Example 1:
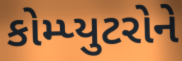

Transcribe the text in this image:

કોમ્પ્યુટરોને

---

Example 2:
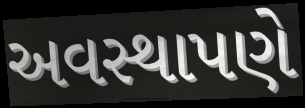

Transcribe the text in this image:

અવસ્થાપણે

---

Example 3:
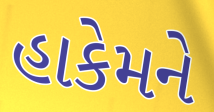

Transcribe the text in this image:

હાકેમને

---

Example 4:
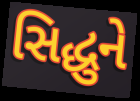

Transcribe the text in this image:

સિદ્ધુને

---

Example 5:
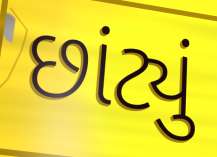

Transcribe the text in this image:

છાંટ્યું